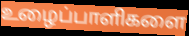
உழைப்பாளிகளை